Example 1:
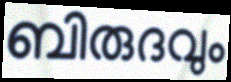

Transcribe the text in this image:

ബിരുദവും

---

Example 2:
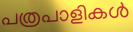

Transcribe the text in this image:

പത്രപാളികൾ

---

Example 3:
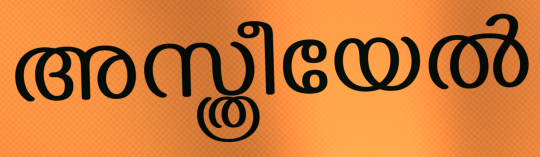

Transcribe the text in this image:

അസ്ത്രീയേൽ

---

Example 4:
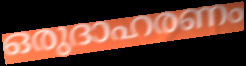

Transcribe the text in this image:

ഒരുദാഹരണം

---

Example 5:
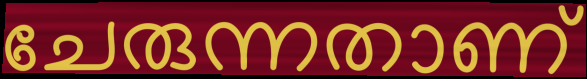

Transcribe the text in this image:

ചേരുന്നതാണ്